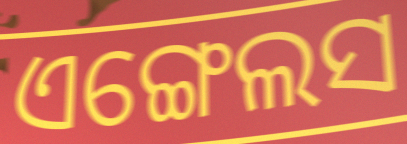
ଏଙ୍ଗେଲସ